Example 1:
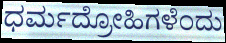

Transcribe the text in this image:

ಧರ್ಮದ್ರೋಹಿಗಳೆಂದು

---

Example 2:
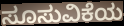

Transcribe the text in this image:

ಸೂಸುವಿಕೆಯ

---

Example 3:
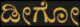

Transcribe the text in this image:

ಡೀಗೋ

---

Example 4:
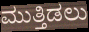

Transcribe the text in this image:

ಮುತ್ತಿಡಲು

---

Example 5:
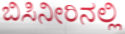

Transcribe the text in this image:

ಬಿಸಿನೀರಿನಲ್ಲಿ